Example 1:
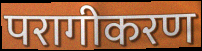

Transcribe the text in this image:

परागीकरण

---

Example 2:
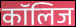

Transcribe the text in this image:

कॉलिज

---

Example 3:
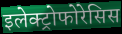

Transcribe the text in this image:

इलेक्ट्रोफोरेसिस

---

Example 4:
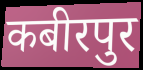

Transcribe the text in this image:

कबीरपुर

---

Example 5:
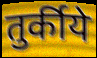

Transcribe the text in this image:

तुर्कीये